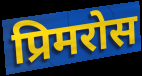
प्रिमरोस